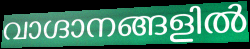
വാഗ്ദാനങ്ങളിൽ